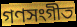
গণসংগীত